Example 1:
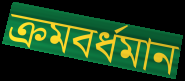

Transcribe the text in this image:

ক্ৰমবৰ্ধমান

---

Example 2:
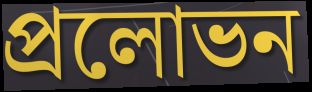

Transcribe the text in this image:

প্ৰলোভন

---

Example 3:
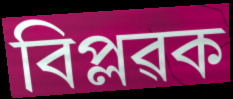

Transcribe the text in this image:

বিপ্লৱক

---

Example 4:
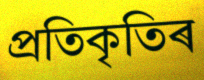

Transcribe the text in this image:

প্ৰতিকৃতিৰ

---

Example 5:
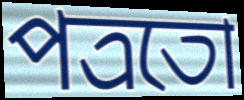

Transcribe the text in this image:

পত্ৰতো